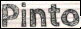
Pinto